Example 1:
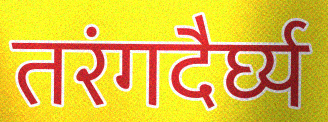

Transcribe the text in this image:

तरंगदैर्घ्य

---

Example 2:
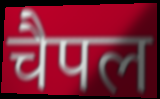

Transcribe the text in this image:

चैपल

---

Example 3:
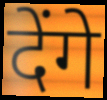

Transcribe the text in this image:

देंगे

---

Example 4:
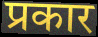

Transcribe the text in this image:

प्रकार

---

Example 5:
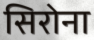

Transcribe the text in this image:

सिरोना